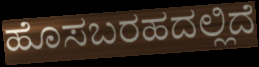
ಹೊಸಬರಹದಲ್ಲಿದೆ